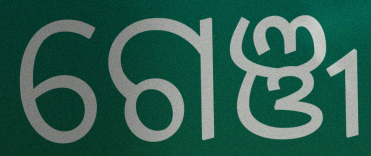
ଗେଞ୍ଜ